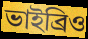
ভাইব্রিও